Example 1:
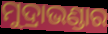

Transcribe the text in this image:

ମୁଦ୍ରାଭଣ୍ଡାର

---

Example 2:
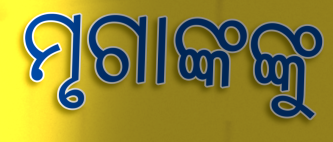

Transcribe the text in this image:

ମୃଗାଙ୍କଙ୍କୁ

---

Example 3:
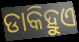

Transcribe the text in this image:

ଡାକିହୁଏ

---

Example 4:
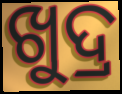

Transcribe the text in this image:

ଖୁଦ୍ର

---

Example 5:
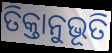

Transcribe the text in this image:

ତିକ୍ତାନୁଭୂତି